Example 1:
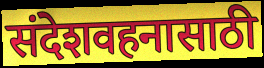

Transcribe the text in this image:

संदेशवहनासाठी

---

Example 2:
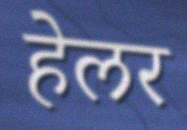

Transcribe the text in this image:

हेलर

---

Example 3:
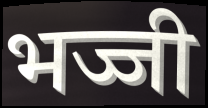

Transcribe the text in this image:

भज्जी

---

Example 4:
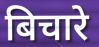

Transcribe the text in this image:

बिचारे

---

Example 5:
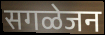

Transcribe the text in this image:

सगळेजन